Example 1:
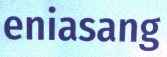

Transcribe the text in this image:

eniasang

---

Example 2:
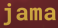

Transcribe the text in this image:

jama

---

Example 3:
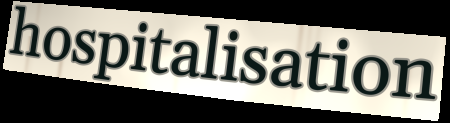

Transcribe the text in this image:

hospitalisation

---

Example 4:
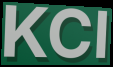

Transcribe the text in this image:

KCl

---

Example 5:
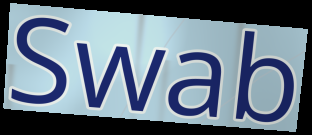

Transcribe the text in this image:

Swab